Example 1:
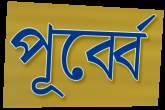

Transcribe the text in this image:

পূৰ্ব্বে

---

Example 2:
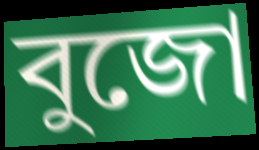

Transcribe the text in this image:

বুজো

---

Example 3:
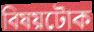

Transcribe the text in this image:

বিষয়টোক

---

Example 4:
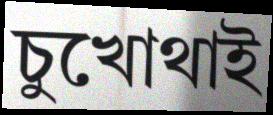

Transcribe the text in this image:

চুখোথাই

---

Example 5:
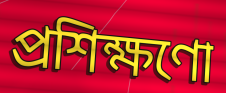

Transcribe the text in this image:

প্ৰশিক্ষণো